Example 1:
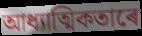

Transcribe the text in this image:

আধ্যাত্মিকতাৰে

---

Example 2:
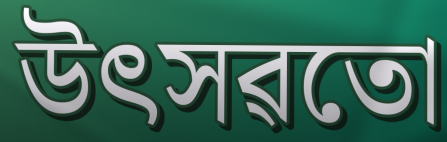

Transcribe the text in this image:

উৎসৱতো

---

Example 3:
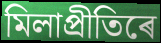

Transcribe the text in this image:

মিলাপ্ৰীতিৰে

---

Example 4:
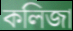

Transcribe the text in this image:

কলিজা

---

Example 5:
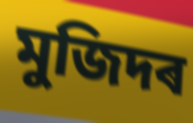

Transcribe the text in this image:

মুজিদৰ